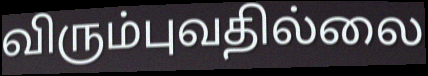
விரும்புவதில்லை